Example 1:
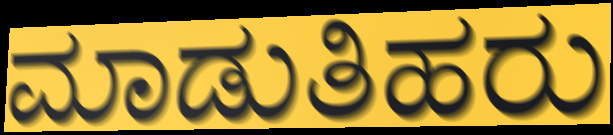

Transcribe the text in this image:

ಮಾಡುತಿಹರು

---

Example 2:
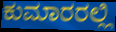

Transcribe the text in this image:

ಕುಮಾರರಲ್ಲಿ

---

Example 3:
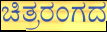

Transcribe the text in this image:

ಚಿತ್ರರಂಗದ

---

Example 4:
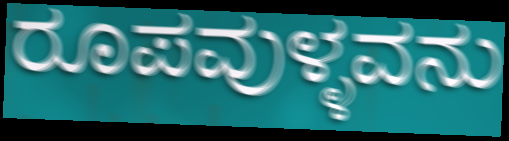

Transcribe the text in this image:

ರೂಪವುಳ್ಳವನು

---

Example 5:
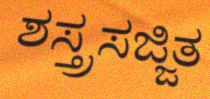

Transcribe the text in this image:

ಶಸ್ತ್ರಸಜ್ಜಿತ